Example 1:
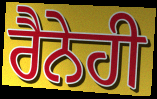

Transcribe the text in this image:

ਰੈਨੇਹੀ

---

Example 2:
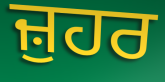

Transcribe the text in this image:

ਜ਼ੁਹਰ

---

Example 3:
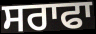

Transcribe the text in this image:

ਸਰਾਫਾ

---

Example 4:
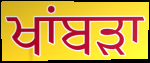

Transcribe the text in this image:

ਖਾਂਬੜਾ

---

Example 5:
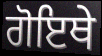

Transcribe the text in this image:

ਗੋਇਥੇ